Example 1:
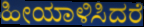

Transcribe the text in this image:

ಹೀಯಾಳಿಸಿದರೆ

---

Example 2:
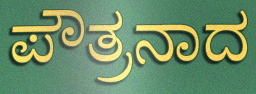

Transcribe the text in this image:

ಪೌತ್ರನಾದ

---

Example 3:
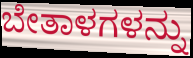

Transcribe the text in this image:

ಬೇತಾಳಗಳನ್ನು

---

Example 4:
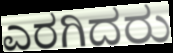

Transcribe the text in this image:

ಎರಗಿದರು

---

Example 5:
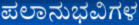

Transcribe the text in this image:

ಪಲಾನುಭವಿಗಳ